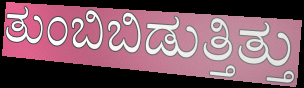
ತುಂಬಿಬಿಡುತ್ತಿತ್ತು